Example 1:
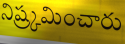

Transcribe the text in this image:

నిష్ర్కమించారు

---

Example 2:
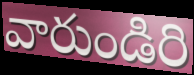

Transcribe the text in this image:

వారుండిరి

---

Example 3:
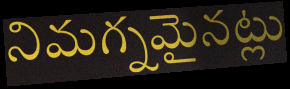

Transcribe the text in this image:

నిమగ్నమైనట్లు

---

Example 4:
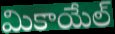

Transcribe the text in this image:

మికాయేల్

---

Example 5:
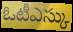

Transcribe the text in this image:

ఓటీఎస్కు